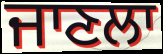
ਜਾਣਲਾ